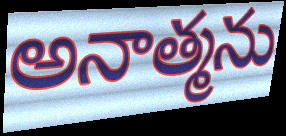
అనాత్మను